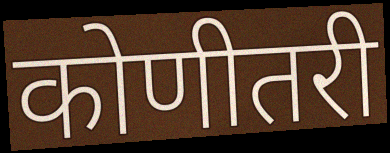
कोणीतरी